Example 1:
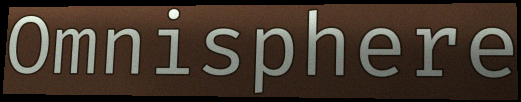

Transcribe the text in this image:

Omnisphere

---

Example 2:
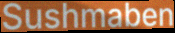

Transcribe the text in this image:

Sushmaben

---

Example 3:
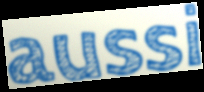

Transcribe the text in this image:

aussi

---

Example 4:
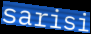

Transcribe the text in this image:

sarisi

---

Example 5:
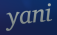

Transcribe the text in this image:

yani